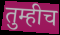
तुम्हीच